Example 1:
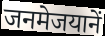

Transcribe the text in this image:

जनमेजयानें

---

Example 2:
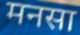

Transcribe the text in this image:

मनसा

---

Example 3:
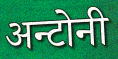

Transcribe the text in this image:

अन्टोनी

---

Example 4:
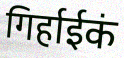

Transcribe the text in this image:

गिर्हाईकं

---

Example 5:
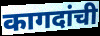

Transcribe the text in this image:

कागदांची